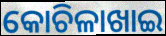
କୋଚିଳାଖାଇ